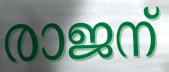
രാജന്